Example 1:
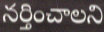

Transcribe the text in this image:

నర్తించాలని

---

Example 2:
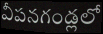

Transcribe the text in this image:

వీపనగండ్లలో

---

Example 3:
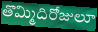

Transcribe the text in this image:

తొమ్మిదిరోజులూ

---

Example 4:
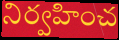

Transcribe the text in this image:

నిర్వహించ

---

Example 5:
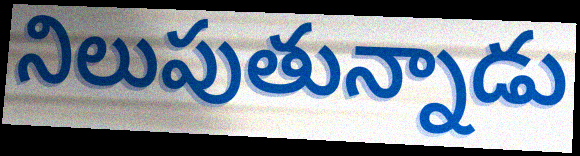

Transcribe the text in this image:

నిలుపుతున్నాడు